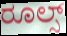
ರೂಲ್ಸ್